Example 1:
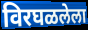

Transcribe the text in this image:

विरघळलेला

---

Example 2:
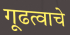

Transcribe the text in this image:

गूढत्वाचे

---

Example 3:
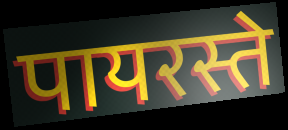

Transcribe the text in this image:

पायरस्ते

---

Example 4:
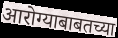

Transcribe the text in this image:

आरोग्याबाबतच्या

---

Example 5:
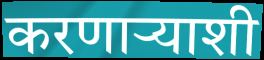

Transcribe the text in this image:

करणाऱ्याशी